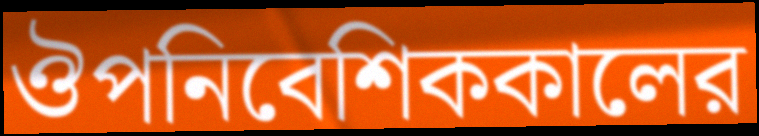
ঔপনিবেশিককালের